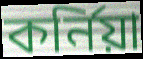
কর্নিয়া